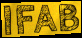
IFAB